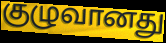
குழுவானது